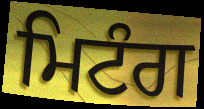
ਮਿਟੰਗ